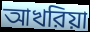
আখরিয়া